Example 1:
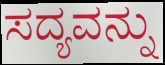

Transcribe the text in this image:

ಸದ್ಯವನ್ನು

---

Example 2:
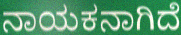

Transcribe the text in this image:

ನಾಯಕನಾಗಿದೆ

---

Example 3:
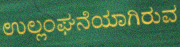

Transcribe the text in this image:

ಉಲ್ಲಂಘನೆಯಾಗಿರುವ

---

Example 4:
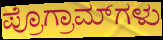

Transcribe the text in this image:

ಪ್ರೊಗ್ರಾಮ್‌ಗಳು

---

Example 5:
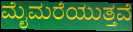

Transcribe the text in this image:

ಮೈಮರೆಯುತ್ತವೆ